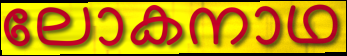
ലോകനാഥ